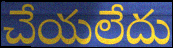
చేయలేదు